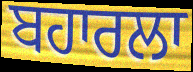
ਬਹਾਰਲਾ